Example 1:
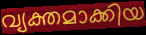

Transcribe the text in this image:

വ്യക്തമാക്കിയ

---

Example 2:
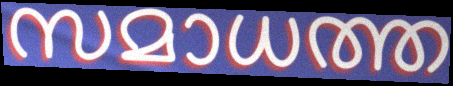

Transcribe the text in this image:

സമാധത്ത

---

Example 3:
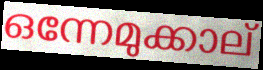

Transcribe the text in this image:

ഒന്നേമുക്കാല്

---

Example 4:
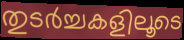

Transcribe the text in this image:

തുടർച്ചകളിലൂടെ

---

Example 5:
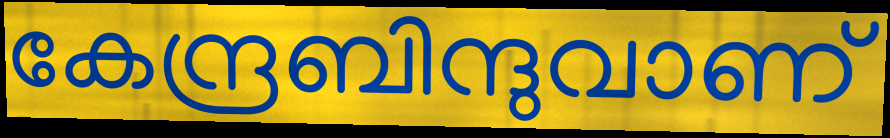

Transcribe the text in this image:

കേന്ദ്രബിന്ദുവാണ്